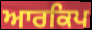
ਆਰਕਿਪ